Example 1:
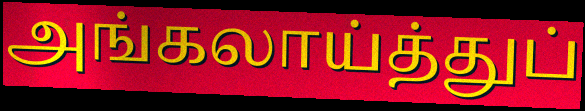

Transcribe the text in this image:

அங்கலாய்த்துப்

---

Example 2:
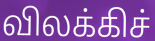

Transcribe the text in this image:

விலக்கிச்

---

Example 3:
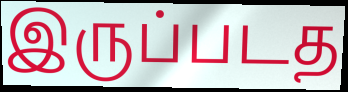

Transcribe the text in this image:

இருப்படத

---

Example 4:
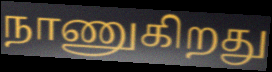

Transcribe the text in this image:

நாணுகிறது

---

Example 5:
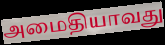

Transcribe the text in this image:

அமைதியாவது